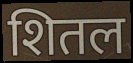
शितल